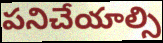
పనిచేయాల్సి